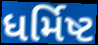
ધર્મિષ્ટ